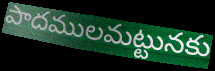
పాదములమట్టునకు